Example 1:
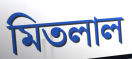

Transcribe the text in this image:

মিতলাল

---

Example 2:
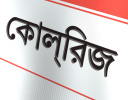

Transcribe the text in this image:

কোল্‌রিজ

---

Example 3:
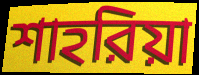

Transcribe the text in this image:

শাহরিয়া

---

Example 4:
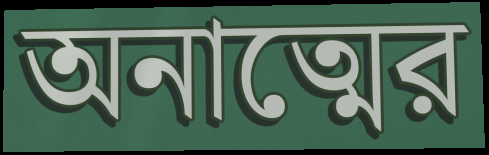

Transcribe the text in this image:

অনাত্মের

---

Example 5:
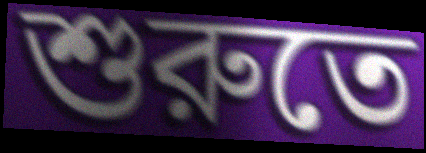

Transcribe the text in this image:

শুরুতে